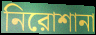
নিরোশানা